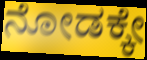
ನೋಡಕ್ಕೇ